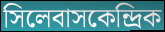
সিলেবাসকেন্দ্রিক